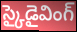
స్కైడైవింగ్